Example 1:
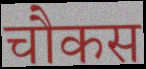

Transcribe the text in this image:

चौकस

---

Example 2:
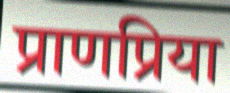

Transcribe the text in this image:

प्राणप्रिया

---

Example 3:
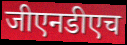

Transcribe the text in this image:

जीएनडीएच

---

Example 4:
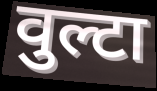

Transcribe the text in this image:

वुल्टा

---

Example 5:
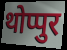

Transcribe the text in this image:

थोप्पुर